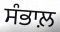
ਸੰਭਾਲ਼